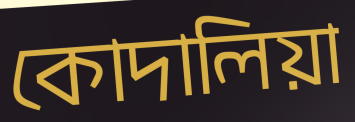
কোদালিয়া